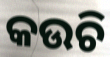
କଉଚି